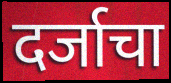
दर्जाचा